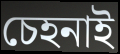
চেহনাই